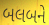
બલબને